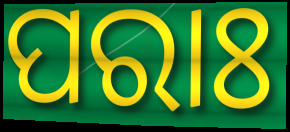
ପରାଃ